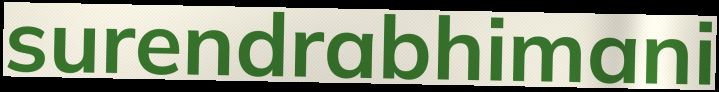
surendrabhimani